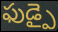
ఫుడ్పై